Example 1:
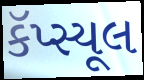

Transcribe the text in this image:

કૅપ્સ્યૂલ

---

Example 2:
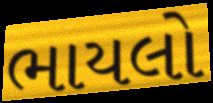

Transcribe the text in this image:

ભાયલો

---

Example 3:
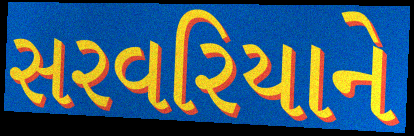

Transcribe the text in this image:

સરવરિયાને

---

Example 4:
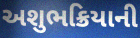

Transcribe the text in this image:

અશુભક્રિયાની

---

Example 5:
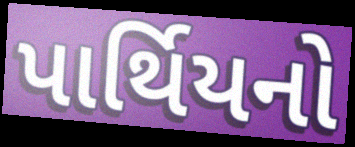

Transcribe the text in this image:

પાર્થિયનો